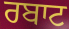
ਰਬਾਟ